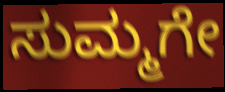
ಸುಮ್ಮಗೇ